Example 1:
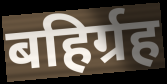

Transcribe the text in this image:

बहिर्ग्रह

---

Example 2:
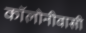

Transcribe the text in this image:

कॉलोनीवासी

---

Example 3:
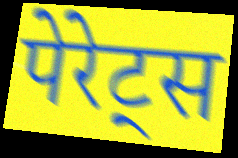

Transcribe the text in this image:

पेरेट्स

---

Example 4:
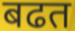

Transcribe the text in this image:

बढत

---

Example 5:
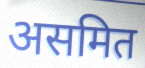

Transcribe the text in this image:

असमित